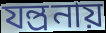
যন্ত্রনায়